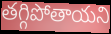
తగ్గిపోతాయని